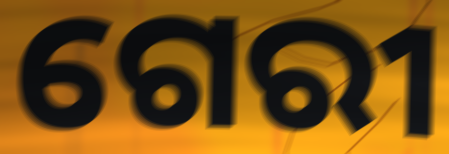
ଗେରୀ